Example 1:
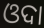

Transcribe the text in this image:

ଓଦା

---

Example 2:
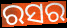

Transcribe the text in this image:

ରସର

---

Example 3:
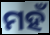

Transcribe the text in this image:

ମହଁ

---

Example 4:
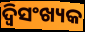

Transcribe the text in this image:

ଦ୍ୱିସଂଖ୍ୟକ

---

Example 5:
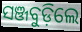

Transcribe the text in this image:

ସଞ୍ଜବୁଡ଼ିଲେ